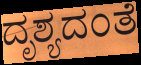
ದೃಶ್ಯದಂತೆ